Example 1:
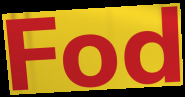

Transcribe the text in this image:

Fod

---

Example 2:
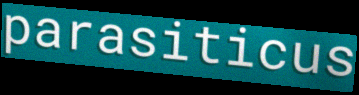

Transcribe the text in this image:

parasiticus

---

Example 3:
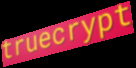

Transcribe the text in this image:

truecrypt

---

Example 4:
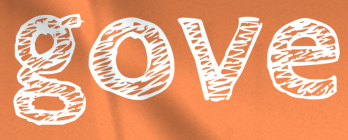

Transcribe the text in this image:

gove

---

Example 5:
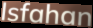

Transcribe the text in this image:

Isfahan